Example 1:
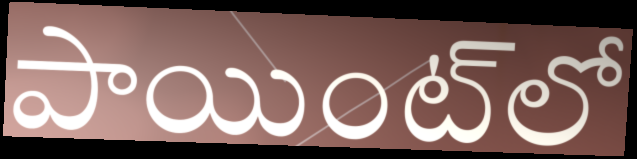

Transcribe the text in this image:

పాయింట్‌లో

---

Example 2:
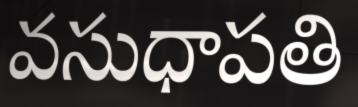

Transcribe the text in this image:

వసుధాపతి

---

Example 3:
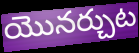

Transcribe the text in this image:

యొనర్చుట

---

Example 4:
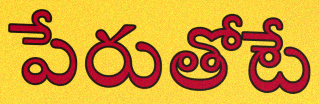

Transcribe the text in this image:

పేరుతోటే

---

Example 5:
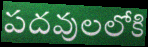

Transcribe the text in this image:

పదవులలోకి